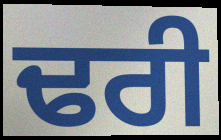
ਢਰੀ